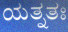
ಯತ್ನತಃ